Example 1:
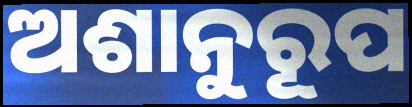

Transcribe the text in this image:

ଅଶାନୁରୂପ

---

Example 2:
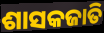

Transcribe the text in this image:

ଶାସକଜାତି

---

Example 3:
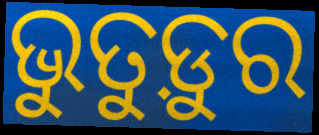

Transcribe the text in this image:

ଭୁତୁଡ଼ୁର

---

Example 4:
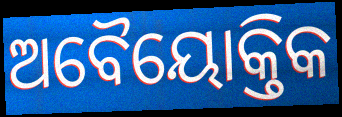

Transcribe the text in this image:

ଅବୈୟୋକ୍ତିକ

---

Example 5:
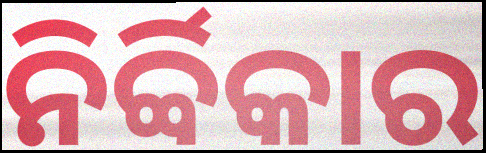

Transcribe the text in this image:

ନିର୍ବ୍ବିକାର